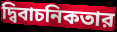
দ্বিবাচনিকতার